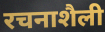
रचनाशैली